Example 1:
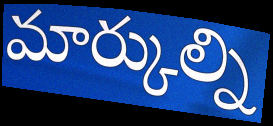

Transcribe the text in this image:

మార్కుల్ని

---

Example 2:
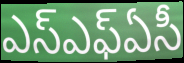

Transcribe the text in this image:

ఎస్ఎఫ్ఏసీ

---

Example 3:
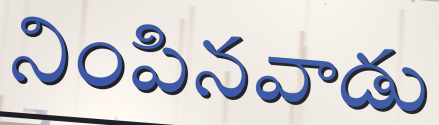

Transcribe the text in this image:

నింపినవాడు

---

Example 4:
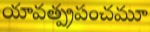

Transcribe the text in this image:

యావత్ప్రపంచమూ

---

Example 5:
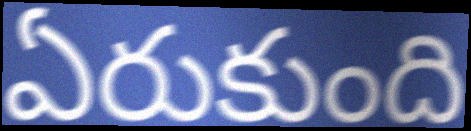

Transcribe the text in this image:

ఏరుకుంది